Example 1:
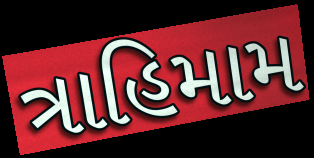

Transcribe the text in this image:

ત્રાહિમામ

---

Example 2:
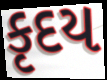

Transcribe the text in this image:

કૃદય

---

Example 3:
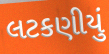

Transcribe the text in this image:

લટકણીયું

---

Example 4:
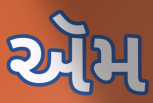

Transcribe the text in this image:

ઍમ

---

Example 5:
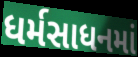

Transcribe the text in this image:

ધર્મસાધનમાં